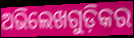
ଅଭିଲେଖଗୁଡ଼ିକର